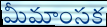
మీమాంసక